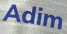
Adim